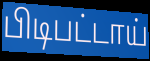
பிடிபட்டாய்